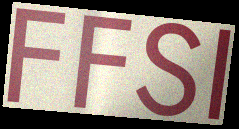
FFSI